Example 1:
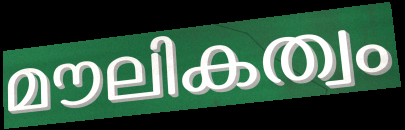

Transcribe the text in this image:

മൗലികത്വം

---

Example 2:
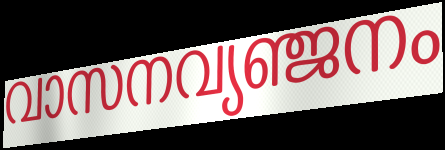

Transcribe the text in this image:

വാസനവ്യഞ്ജനം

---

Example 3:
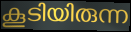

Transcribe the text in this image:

കൂടിയിരുന്ന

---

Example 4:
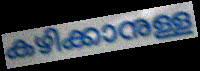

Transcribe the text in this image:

കഴിക്കാനുള്ള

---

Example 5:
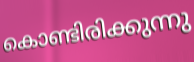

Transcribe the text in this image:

കൊണ്ടിരിക്കുന്നു